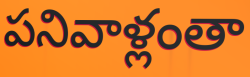
పనివాళ్లంతా